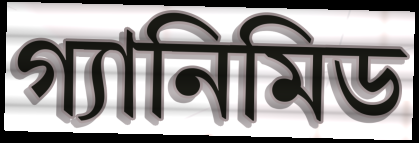
গ্যানিমিড